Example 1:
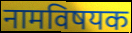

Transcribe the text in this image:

नामविषयक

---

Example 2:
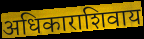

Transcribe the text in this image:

अधिकाराशिवाय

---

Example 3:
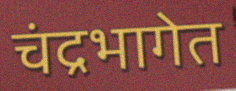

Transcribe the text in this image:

चंद्रभागेत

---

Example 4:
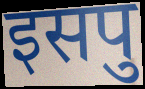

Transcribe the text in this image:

इसपु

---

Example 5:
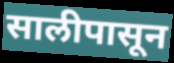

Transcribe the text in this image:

सालीपासून